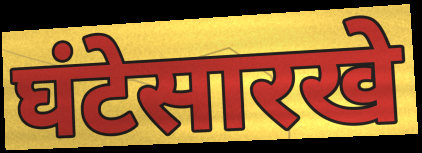
घंटेसारखे